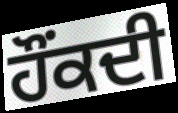
ਹੌਂਕਦੀ